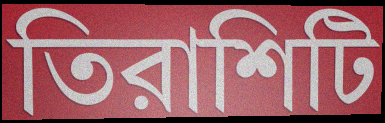
তিরাশিটি